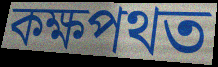
কক্ষপথত